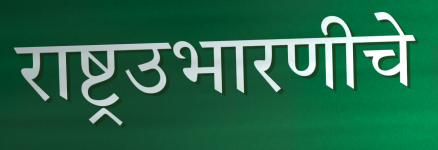
राष्ट्रउभारणीचे